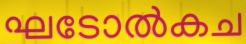
ഘടോൽകച